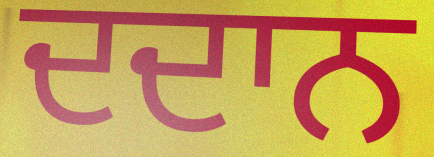
ਦਦਾਨ